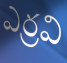
ఎర్రవి